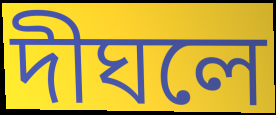
দীঘলে